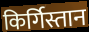
किर्गिस्तान